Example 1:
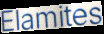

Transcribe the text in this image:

Elamites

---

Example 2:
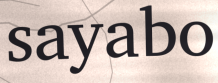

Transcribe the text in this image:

sayabo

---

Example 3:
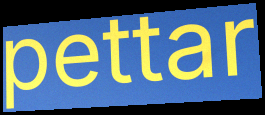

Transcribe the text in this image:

pettar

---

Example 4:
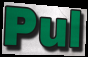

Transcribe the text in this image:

Pul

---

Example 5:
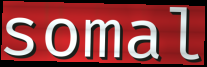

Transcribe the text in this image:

somal